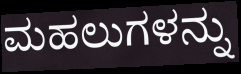
ಮಹಲುಗಳನ್ನು